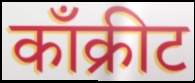
काँक्रीट